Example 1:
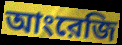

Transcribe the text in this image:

আংরেজি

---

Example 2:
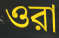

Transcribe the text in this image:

ওরা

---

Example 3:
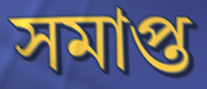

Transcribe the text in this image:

সমাপ্ত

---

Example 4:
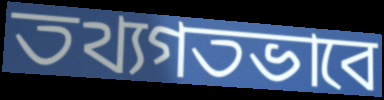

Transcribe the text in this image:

তথ্যগতভাবে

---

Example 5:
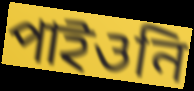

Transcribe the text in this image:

পাইওনি